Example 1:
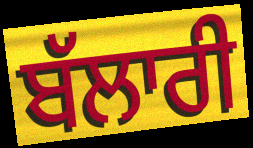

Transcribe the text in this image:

ਬੱਲਾਰੀ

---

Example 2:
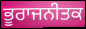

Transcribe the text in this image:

ਭੂਰਾਜਨੀਤਕ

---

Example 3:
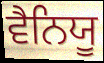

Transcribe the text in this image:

ਵੈਨਿਯੂ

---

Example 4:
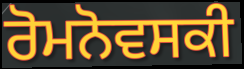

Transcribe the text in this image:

ਰੋਮਨੋਵਸਕੀ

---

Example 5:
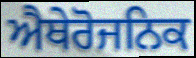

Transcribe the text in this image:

ਐਥੇਰੋਜਨਿਕ